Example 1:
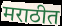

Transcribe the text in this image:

मराठीत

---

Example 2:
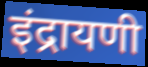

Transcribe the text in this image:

इंद्रायणी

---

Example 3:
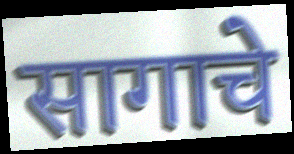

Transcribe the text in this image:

सागाचे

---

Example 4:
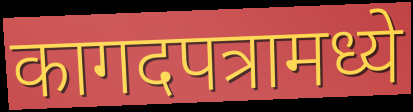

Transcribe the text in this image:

कागदपत्रामध्ये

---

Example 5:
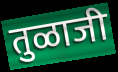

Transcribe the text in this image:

तुळाजी